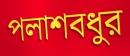
পলাশবধুর